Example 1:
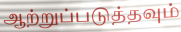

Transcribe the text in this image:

ஆற்றுப்படுத்தவும்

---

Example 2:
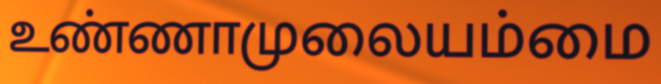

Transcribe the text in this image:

உண்ணாமுலையம்மை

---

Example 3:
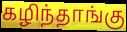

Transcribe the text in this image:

கழிந்தாங்கு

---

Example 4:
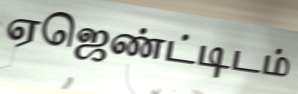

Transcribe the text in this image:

ஏஜெண்ட்டிடம்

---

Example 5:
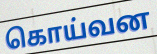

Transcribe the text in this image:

கொய்வன